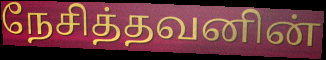
நேசித்தவனின்